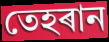
তেহৰান